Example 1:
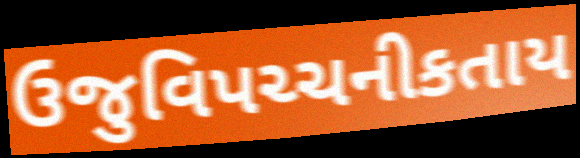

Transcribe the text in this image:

ઉજુવિપચ્ચનીકતાય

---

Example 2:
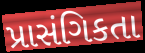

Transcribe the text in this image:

પ્રાસંગિકતા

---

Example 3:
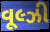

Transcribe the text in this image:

વૂલ્ઝી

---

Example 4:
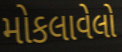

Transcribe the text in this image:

મોકલાવેલો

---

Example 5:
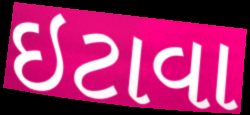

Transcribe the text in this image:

ઇટાવા